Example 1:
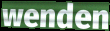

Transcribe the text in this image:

wenden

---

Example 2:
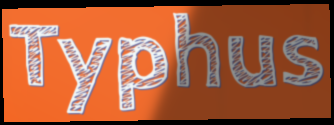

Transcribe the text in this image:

Typhus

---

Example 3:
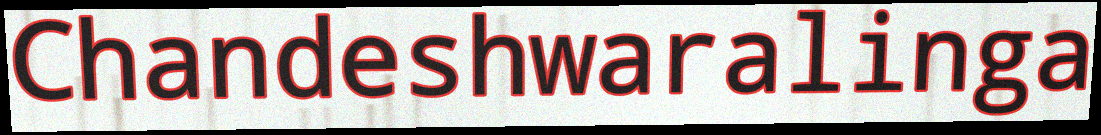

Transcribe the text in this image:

Chandeshwaralinga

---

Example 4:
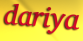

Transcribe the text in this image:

dariya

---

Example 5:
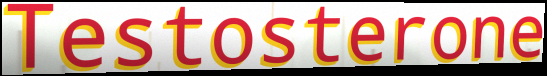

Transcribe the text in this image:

Testosterone